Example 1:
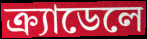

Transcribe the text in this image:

ক্র্যাডেলে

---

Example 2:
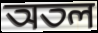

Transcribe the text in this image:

অতল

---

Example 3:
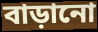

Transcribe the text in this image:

বাড়ানো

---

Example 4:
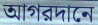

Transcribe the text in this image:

আগরদানে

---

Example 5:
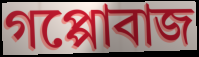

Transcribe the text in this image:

গপ্পোবাজ